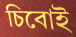
চিবোই